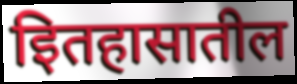
इितहासातील